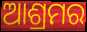
ଆଶ୍ରମର